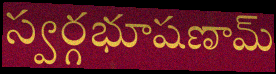
స్వర్గభూషణామ్